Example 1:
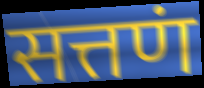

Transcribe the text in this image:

सत्तणं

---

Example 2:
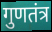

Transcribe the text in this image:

गुणतंत्र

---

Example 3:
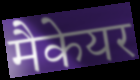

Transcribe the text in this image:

मैकेयर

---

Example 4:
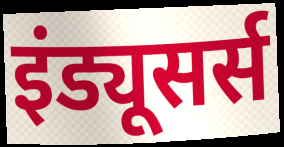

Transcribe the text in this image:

इंड्यूसर्स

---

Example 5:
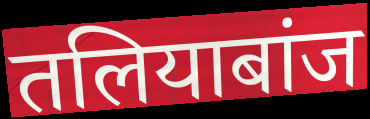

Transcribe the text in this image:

तलियाबांज